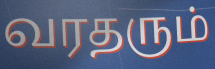
வரதரும்